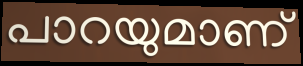
പാറയുമാണ്